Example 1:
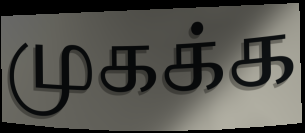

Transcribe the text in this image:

முகக்க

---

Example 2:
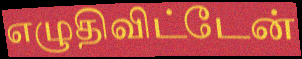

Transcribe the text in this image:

எழுதிவிட்டேன்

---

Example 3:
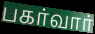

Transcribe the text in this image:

பகர்வார்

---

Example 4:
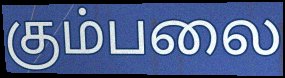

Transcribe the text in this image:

கும்பலை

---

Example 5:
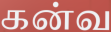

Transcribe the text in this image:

கன்வ